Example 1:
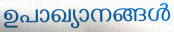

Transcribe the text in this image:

ഉപാഖ്യാനങ്ങൾ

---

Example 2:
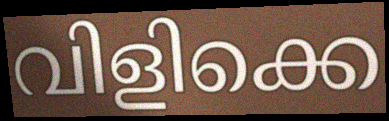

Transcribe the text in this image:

വിളിക്കെ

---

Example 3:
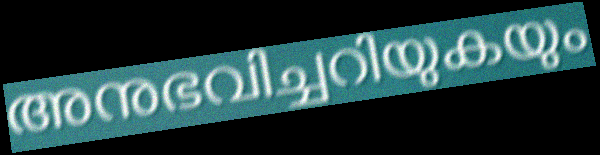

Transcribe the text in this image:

അനുഭവിച്ചറിയുകയും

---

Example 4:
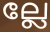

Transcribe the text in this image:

ല്ലേ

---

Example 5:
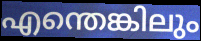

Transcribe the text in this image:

എന്തെങ്കിലും